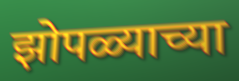
झोपळ्याच्या